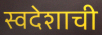
स्वदेशाची